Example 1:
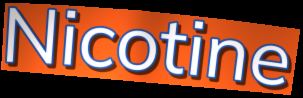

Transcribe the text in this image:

Nicotine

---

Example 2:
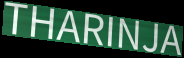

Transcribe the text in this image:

THARINJA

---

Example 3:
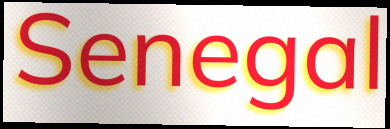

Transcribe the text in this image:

Senegal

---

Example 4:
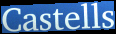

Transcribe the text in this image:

Castells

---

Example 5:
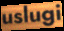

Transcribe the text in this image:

uslugi